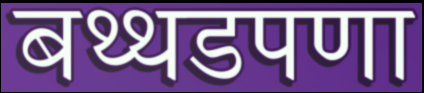
बथ्थडपणा